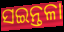
ସଇନ୍ତଳା